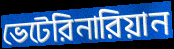
ভেটেরিনারিয়ান